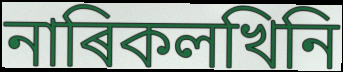
নাৰিকলখিনি